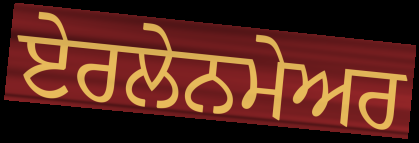
ਏਰਲੇਨਮੇਅਰ